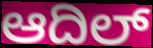
ಆದಿಲ್